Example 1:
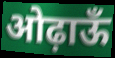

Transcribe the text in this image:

ओढ़ाऊँ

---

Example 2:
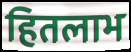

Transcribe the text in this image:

हितलाभ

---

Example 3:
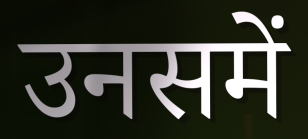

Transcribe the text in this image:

उनसमें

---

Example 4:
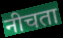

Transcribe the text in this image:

नीचता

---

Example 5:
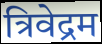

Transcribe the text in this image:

त्रिवेद्रम